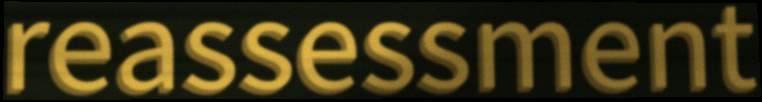
reassessment